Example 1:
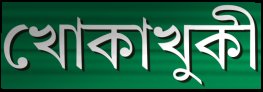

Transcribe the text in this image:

খোকাখুকী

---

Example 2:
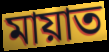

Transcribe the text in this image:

মায়াত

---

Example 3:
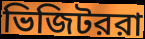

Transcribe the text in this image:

ভিজিটররা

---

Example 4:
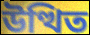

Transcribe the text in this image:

উত্থিত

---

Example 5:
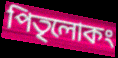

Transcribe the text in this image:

পিতৃলোকং